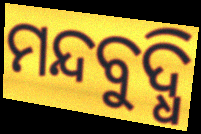
ମନ୍ଦବୁଦ୍ଧି